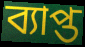
ব্যাপ্ত